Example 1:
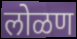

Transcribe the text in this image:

लोळण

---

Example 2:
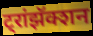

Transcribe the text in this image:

ट्रांझॅक्शन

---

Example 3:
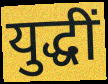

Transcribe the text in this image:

युद्धीं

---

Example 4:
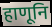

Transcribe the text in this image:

हाणूनि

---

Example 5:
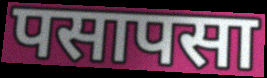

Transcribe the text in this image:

पसापसा